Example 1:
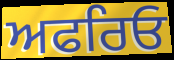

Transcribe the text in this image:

ਅਫਰਿਓ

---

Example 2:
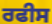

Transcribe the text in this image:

ਰਫੀਸ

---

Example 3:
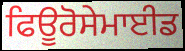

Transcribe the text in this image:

ਫਿਊਰੋਸੇਮਾਈਡ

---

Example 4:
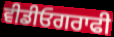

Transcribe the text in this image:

ਵੀਡੀਓਗਰਾਫੀ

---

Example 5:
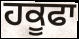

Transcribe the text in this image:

ਹਕੂਫਾ